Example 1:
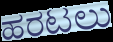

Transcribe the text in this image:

ಹರಟಲು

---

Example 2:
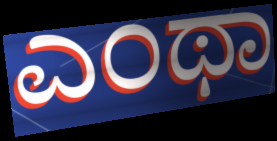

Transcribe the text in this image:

ಎಂಥಾ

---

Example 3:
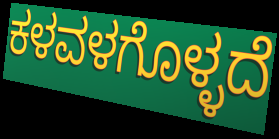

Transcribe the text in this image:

ಕಳವಳಗೊಳ್ಳದೆ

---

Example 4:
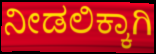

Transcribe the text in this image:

ನೀಡಲಿಕ್ಕಾಗಿ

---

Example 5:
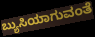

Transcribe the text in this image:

ಬ್ಯುಸಿಯಾಗುವಂತೆ